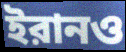
ইরানও